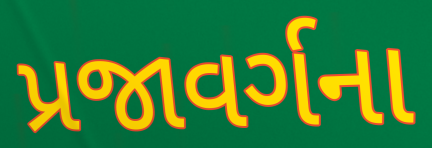
પ્રજાવર્ગના